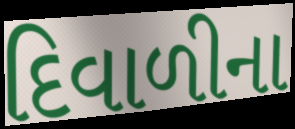
દિવાળીના